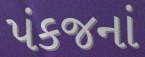
પંકજનાં